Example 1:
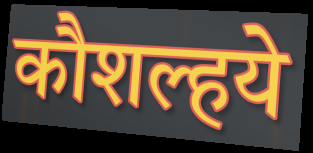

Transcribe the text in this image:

कौशल्हये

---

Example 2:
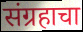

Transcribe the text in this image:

संग्रहाचा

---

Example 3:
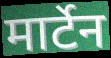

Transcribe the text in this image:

मार्टेन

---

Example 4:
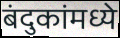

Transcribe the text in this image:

बंदुकांमध्ये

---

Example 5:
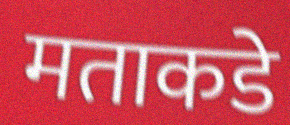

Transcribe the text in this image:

मताकडे